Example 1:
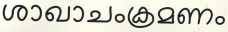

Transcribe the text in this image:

ശാഖാചംക്രമണം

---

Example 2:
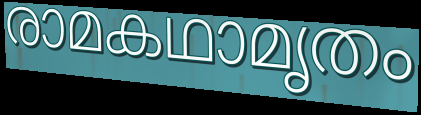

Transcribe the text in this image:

രാമകഥാമൃതം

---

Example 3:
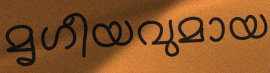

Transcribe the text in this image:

മൃഗീയവുമായ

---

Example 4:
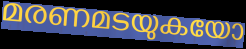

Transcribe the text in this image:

മരണമടയുകയോ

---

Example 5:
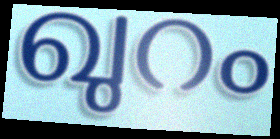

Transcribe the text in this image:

ഖുറം